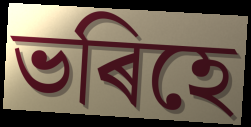
ভৰিহে